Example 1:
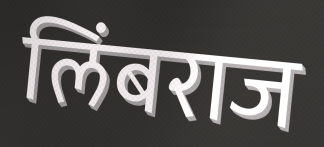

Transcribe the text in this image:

लिंबराज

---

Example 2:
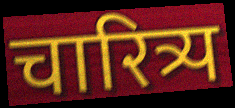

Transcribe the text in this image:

चारित्र्य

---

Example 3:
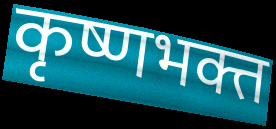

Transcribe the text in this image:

कृष्णभक्त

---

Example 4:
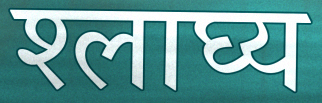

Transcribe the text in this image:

श्लाघ्य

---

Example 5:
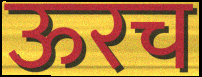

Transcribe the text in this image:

ऊरच